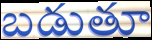
బడుతూ